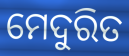
ମେଦୁରିତ